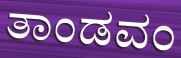
ತಾಂಡವಂ